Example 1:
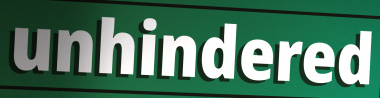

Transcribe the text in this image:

unhindered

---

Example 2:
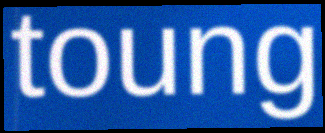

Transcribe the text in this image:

toung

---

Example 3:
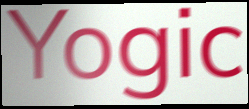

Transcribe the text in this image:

Yogic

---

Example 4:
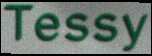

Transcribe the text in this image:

Tessy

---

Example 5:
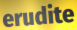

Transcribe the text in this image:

erudite